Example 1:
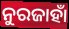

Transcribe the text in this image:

ନୁରଜାହାଁ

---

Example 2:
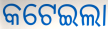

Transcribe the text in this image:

କଟେଇଲା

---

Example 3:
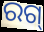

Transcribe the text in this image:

ରଗ୍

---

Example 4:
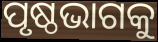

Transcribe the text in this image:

ପୃଷ୍ଠଭାଗକୁ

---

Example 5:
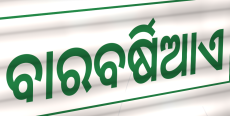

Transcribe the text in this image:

ବାରବର୍ଷିଆଏ